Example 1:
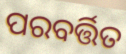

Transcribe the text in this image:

ପରବର୍ତ୍ତିତ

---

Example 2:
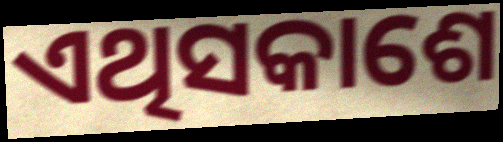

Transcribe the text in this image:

ଏଥିସକାଶେ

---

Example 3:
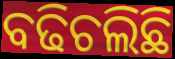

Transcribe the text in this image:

ବଢିଚଲିଛି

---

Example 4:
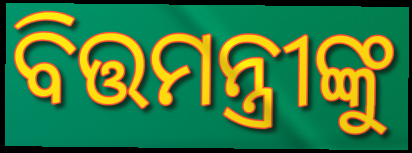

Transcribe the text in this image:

ବିତ୍ତମନ୍ତ୍ରୀଙ୍କୁ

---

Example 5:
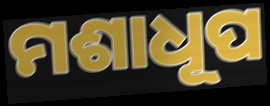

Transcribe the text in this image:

ମଶାଧୂପ